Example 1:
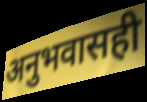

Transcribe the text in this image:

अनुभवासही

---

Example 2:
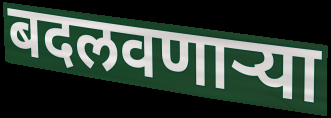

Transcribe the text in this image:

बदलवणार्‍या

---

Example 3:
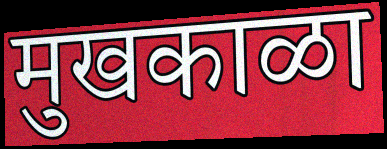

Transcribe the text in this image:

मुखकाळा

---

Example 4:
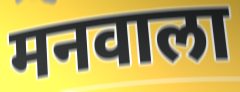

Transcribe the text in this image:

मनवाला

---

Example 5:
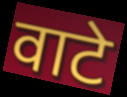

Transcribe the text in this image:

वाटे